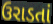
ઉરાડતાં